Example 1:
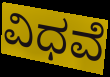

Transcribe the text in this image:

ವಿಧವೆ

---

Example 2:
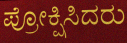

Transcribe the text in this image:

ಪ್ರೋಕ್ಷಿಸಿದರು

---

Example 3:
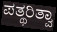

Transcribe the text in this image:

ಪತ್ಥರಿತ್ವಾ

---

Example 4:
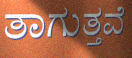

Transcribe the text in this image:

ತಾಗುತ್ತವೆ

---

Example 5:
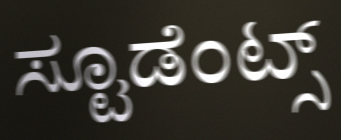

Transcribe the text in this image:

ಸ್ಟೂಡೆಂಟ್ಸ್